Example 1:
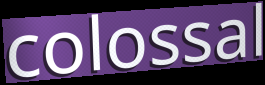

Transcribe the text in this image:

colossal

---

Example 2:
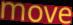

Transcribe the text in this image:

move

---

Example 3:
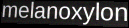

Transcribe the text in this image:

melanoxylon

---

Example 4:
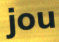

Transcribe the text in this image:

jou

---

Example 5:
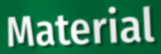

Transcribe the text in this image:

Material